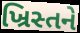
ખ્રિસ્તને